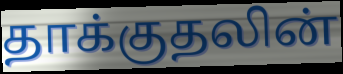
தாக்குதலின்